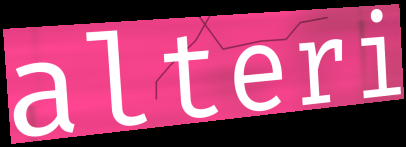
alteri